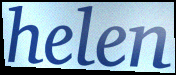
helen